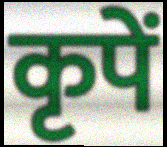
कृपें